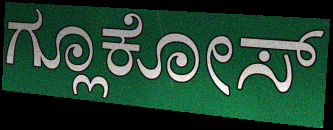
ಗ್ಲೂಕೋಸ್